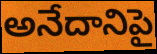
అనేదానిపై